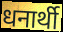
धनार्थी